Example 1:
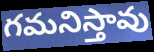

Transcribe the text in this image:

గమనిస్తావు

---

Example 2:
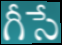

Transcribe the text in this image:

గీసే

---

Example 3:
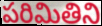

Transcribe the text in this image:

పరిమితిని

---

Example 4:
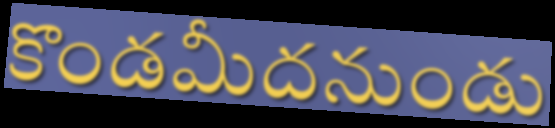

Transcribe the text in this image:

కొండమీదనుండు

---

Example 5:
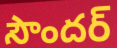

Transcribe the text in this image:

సౌందర్